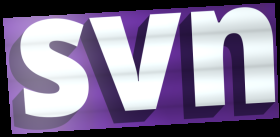
svn